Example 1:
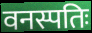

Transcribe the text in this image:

वनस्पतिः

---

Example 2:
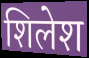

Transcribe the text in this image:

शिलेश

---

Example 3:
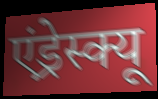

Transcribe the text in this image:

एंड्रेस्क्यू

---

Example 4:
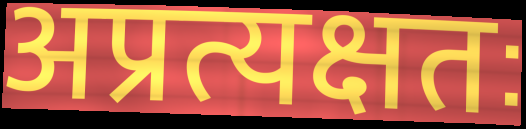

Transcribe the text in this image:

अप्रत्यक्षतः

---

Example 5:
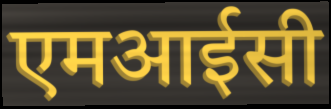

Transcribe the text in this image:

एमआईसी